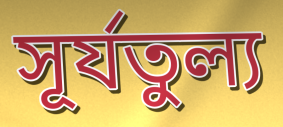
সূর্যতুল্য